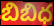
బిబిధ